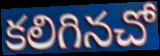
కలిగినచో